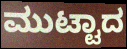
ಮುಟ್ಟಾದ